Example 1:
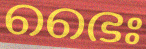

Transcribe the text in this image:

ഭൈഃ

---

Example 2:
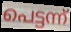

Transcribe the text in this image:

പെട്ടന്ന്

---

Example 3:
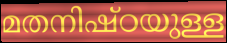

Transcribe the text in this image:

മതനിഷ്ഠയുള്ള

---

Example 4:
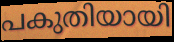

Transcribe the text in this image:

പകുതിയായി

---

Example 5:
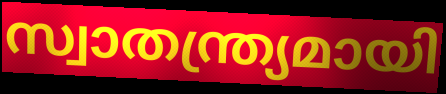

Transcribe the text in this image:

സ്വാതന്ത്ര്യമായി